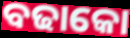
ବଢାକୋ